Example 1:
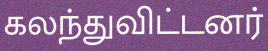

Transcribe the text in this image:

கலந்துவிட்டனர்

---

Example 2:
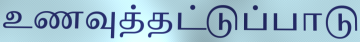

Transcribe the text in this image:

உணவுத்தட்டுப்பாடு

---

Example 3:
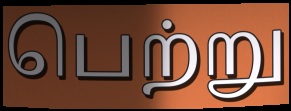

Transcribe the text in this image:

பெற்று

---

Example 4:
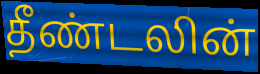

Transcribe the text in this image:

தீண்டலின்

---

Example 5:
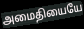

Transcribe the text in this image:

அமைதியையே